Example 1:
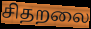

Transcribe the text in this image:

சிதறலை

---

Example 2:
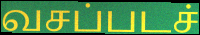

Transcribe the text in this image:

வசப்படச்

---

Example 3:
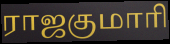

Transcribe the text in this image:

ராஜகுமாரி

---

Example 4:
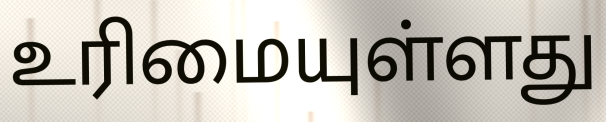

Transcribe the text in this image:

உரிமையுள்ளது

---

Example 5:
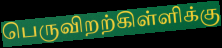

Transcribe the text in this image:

பெருவிறற்கிள்ளிக்கு